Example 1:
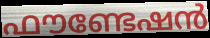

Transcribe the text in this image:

ഫൗണ്ടേഷൻ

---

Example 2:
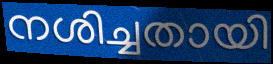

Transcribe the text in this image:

നശിച്ചതായി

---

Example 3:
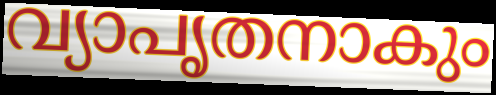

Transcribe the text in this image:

വ്യാപൃതനാകും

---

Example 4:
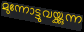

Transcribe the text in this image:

മുന്നോട്ടുവയ്ക്കുന്ന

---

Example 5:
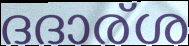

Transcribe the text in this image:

ദദാര്ശ